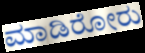
ಮಾಡಿರೋರು